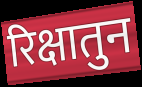
रिक्षातुन